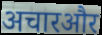
अचारऔर